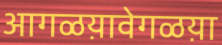
आगळय़ावेगळय़ा